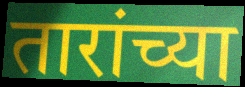
तारांच्या